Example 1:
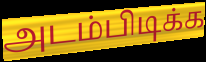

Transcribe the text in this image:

அடம்பிடிக்க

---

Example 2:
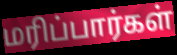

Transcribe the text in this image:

மரிப்பார்கள்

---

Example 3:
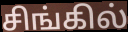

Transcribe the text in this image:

சிங்கில்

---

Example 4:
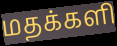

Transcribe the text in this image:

மதக்களி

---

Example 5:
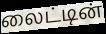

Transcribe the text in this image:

லைட்டின்